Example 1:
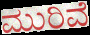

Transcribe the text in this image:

ಮುರಿವೆ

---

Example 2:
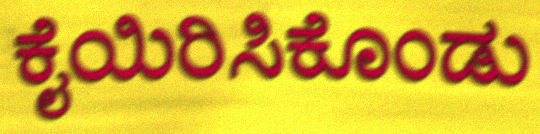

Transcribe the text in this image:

ಕೈಯಿರಿಸಿಕೊಂಡು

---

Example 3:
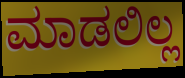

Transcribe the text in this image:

ಮಾಡಲಿಲ್ಲ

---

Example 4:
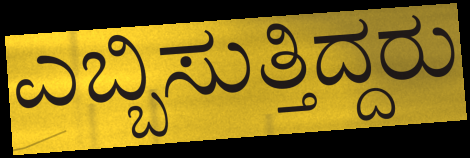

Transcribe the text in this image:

ಎಬ್ಬಿಸುತ್ತಿದ್ದರು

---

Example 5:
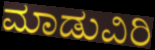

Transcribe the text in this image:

ಮಾಡುವಿರಿ